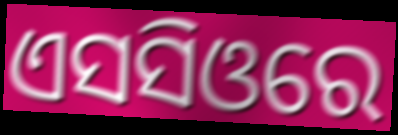
ଏସସିଓରେ